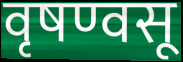
वृषण्वसू